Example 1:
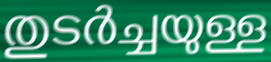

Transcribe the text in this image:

തുടർച്ചയുള്ള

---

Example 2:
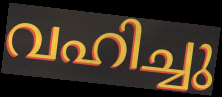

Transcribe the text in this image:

വഹിച്ചു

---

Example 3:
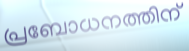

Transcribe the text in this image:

പ്രബോധനത്തിന്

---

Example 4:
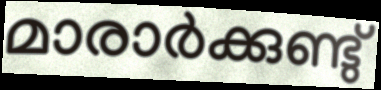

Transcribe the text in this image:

മാരാർക്കുണ്ടു്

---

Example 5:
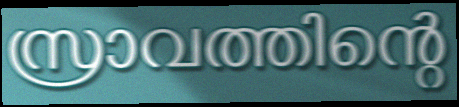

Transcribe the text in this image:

സ്രാവത്തിന്റെ